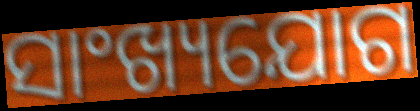
ସାଂଖ୍ଯଯୋଗ